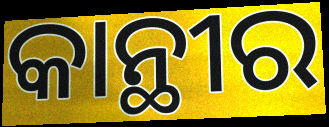
କାନ୍ଥୀର